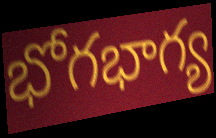
భోగభాగ్య